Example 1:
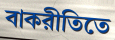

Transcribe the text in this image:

বাকরীতিতে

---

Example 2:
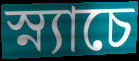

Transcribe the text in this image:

স্ন্যাচে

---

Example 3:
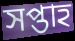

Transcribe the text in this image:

সপ্তাহ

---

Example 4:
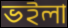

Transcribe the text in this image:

ভইলা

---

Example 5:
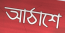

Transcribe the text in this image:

আঠাশে